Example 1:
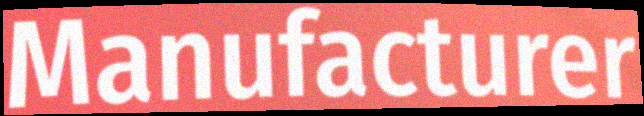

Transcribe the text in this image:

Manufacturer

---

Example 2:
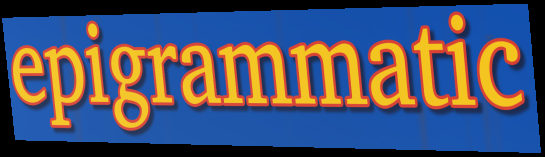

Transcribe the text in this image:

epigrammatic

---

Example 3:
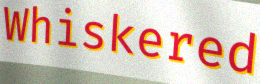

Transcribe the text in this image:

Whiskered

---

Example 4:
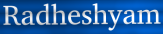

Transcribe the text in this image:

Radheshyam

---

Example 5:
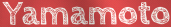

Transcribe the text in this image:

Yamamoto